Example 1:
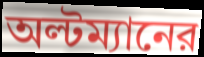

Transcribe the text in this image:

অল্টম্যানের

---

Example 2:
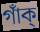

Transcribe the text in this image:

গাঁক্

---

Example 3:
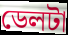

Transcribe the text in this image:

ডেলটা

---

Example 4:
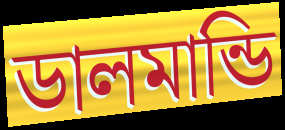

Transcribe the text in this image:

ডালমান্ডি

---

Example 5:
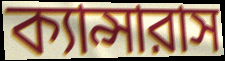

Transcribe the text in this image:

ক্যান্সারাস